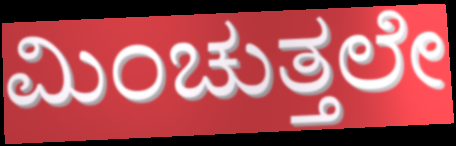
ಮಿಂಚುತ್ತಲೇ